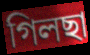
গিলছা